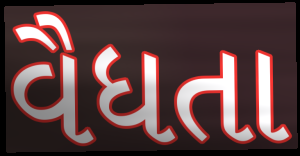
વૈધતા